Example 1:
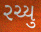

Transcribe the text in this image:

રચ્યુ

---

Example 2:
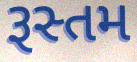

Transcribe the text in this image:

રૂસ્તમ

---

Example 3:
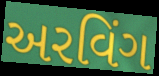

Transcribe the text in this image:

અરવિંગ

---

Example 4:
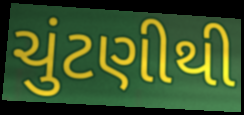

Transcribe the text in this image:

ચુંટણીથી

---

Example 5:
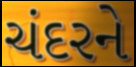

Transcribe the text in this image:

ચંદરને